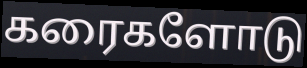
கரைகளோடு